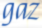
gaz